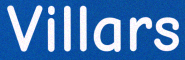
Villars